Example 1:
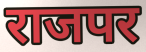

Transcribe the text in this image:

राजपर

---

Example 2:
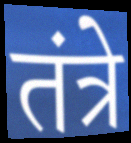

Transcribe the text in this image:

तंत्रे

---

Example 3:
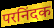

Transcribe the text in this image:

परनिंदक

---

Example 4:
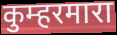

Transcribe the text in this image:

कुम्हरमारा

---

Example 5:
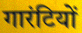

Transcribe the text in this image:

गारंटियों